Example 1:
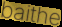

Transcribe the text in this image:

baithe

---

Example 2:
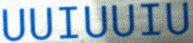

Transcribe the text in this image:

UUIUUIU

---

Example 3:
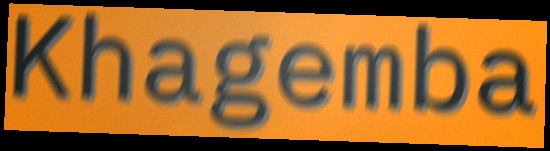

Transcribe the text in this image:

Khagemba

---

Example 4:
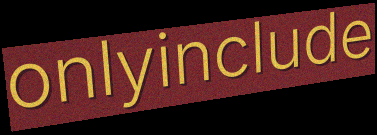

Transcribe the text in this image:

onlyinclude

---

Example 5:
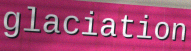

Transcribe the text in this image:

glaciation